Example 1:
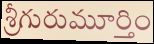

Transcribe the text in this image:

శ్రీగురుమూర్తిం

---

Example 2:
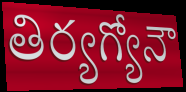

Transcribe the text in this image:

తిర్యగ్యోనౌ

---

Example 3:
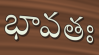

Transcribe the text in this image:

భావతః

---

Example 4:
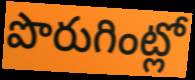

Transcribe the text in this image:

పొరుగింట్లో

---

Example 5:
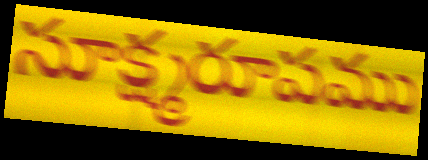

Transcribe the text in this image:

సూక్ష్మరూపము